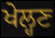
ਖੇਲ੍ਹਣ